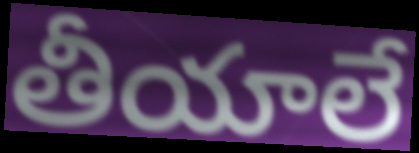
తీయాలే